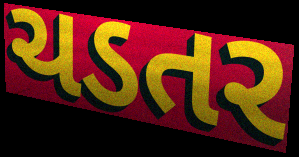
ચડતર